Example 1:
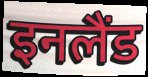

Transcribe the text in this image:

इनलैंड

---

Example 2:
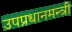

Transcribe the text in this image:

उपप्रधानमन्त्री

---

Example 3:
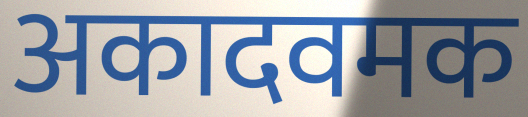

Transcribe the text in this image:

अकादवमक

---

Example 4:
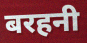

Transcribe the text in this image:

बरहनी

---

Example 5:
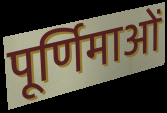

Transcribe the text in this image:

पूर्णिमाओं